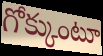
గోక్కుంటూ